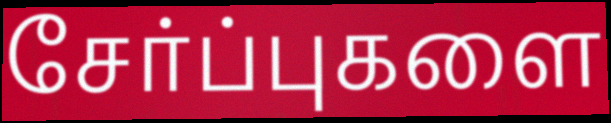
சேர்ப்புகளை